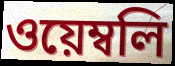
ওয়েম্বলি